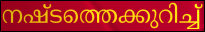
നഷ്ടത്തെക്കുറിച്ച്